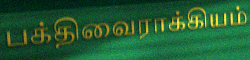
பக்திவைராக்கியம்